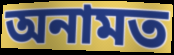
অনামত